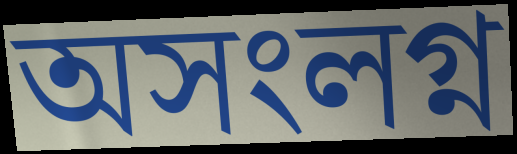
অসংলগ্ন